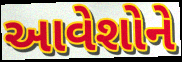
આવેશોને